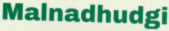
Malnadhudgi